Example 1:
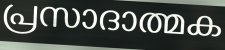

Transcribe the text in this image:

പ്രസാദാത്മക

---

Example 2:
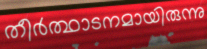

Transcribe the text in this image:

തീർത്ഥാടനമായിരുന്നു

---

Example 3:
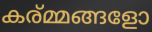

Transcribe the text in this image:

കര്മ്മങ്ങളോ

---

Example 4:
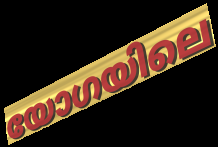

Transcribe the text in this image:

യോഗയിലെ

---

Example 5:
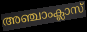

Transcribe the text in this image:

അഞ്ചാംക്ലാസ്